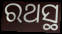
ରଥସ୍ଥ